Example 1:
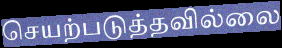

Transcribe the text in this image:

செயற்படுத்தவில்லை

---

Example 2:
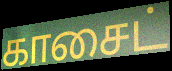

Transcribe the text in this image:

காசைட்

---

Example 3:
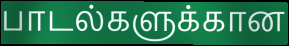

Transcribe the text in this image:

பாடல்களுக்கான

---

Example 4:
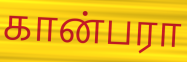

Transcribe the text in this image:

கான்பரா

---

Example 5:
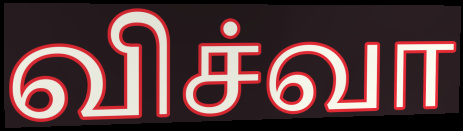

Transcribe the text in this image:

விச்வா